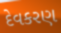
દેવકરણ